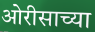
ओरीसाच्या